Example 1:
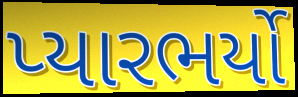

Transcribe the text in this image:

પ્યારભર્યો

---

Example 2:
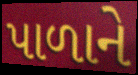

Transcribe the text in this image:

પાળાને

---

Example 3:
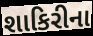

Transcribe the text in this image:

શાકિરીના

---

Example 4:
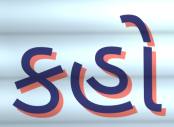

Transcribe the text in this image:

કહો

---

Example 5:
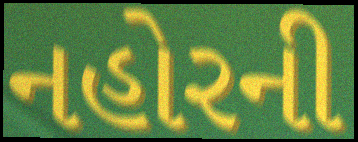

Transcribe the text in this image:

નહોરની